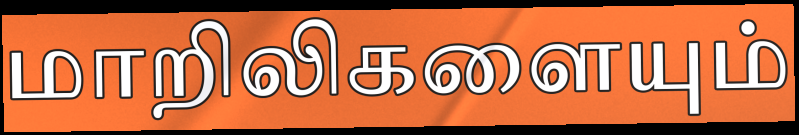
மாறிலிகளையும்